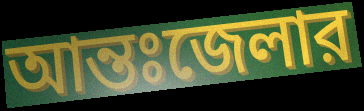
আন্তঃজেলার